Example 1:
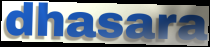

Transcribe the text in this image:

dhasara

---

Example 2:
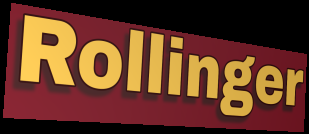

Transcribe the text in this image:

Rollinger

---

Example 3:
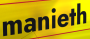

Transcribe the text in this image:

manieth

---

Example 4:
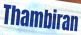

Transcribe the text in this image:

Thambiran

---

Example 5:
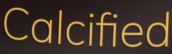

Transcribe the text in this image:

Calcified